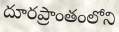
దూరప్రాంతంలోని